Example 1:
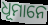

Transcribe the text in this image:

ଧୂମାନେ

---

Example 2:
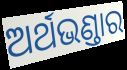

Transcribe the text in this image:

ଅର୍ଥଭଣ୍ଡାର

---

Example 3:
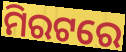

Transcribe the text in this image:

ମିରଟରେ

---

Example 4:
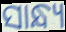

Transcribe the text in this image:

ସାନ୍ଧ୍ୟ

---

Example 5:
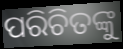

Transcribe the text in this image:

ପରିଚିତଙ୍କୁ